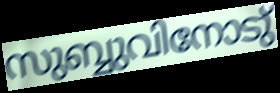
സുബ്ബുവിനോടു്